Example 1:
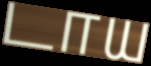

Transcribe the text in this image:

டாய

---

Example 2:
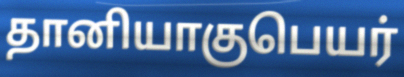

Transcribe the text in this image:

தானியாகுபெயர்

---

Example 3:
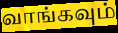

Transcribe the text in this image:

வாங்கவும்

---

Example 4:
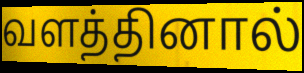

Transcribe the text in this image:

வளத்தினால்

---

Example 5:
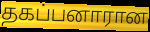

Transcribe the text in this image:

தகப்பனாரான